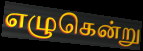
எழுகென்று